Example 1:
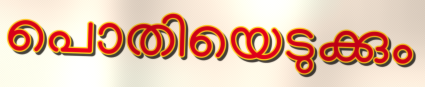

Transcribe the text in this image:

പൊതിയെടുക്കും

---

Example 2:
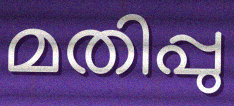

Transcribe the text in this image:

മതിപ്പു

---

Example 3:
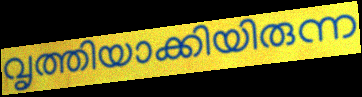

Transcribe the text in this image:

വൃത്തിയാക്കിയിരുന്ന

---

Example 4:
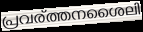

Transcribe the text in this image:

പ്രവര്ത്തനശൈലി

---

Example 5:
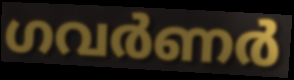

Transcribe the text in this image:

ഗവർണർ